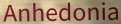
Anhedonia